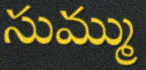
సుమ్ము